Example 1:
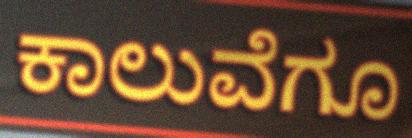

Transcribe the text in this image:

ಕಾಲುವೆಗೂ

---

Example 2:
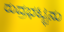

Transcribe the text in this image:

ರುದ್ರಭಟ್ಟನು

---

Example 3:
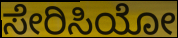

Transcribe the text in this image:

ಸೇರಿಸಿಯೋ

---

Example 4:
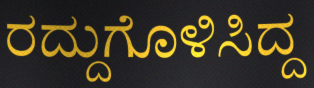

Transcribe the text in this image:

ರದ್ದುಗೊಳಿಸಿದ್ದ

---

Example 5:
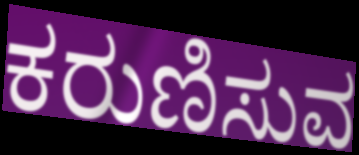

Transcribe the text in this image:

ಕರುಣಿಸುವ